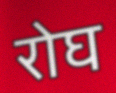
रोघ